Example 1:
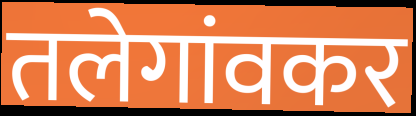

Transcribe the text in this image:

तलेगांवकर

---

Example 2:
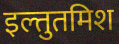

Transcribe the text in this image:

इल्तुतमिश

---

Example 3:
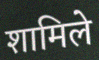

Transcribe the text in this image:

शामिले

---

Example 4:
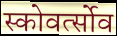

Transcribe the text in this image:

स्कोवर्त्सोव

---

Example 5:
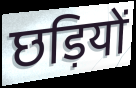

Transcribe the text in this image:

छड़ियों